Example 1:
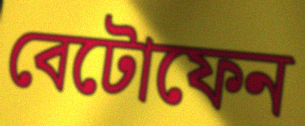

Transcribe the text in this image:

বেটোফেন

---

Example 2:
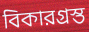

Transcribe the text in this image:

বিকারগ্রস্ত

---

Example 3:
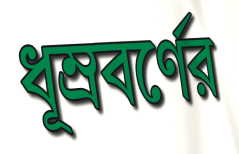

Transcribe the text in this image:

ধূম্রবর্ণের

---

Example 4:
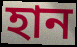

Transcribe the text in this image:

হান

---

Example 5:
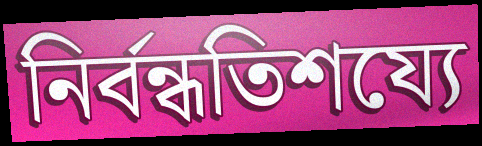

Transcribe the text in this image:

নির্বন্ধতিশয্যে